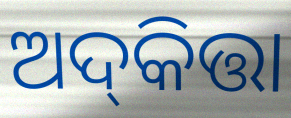
ଅଦ୍‌କିତ୍ତା